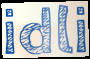
idli